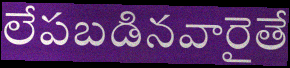
లేపబడినవారైతే